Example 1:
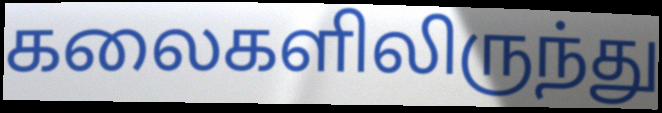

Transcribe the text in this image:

கலைகளிலிருந்து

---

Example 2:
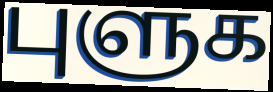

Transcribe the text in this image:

புளுக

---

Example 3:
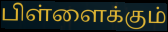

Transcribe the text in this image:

பிள்ளைக்கும்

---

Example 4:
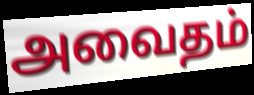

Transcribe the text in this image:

அவைதம்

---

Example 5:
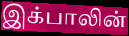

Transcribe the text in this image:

இக்பாலின்